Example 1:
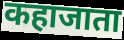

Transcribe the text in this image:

कहाजाता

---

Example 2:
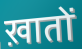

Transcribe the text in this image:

ख़ातों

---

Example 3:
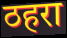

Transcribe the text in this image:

ठहरा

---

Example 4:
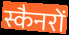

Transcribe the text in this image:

स्कैनरों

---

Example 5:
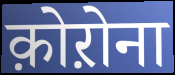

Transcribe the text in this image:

क़ोऱोना